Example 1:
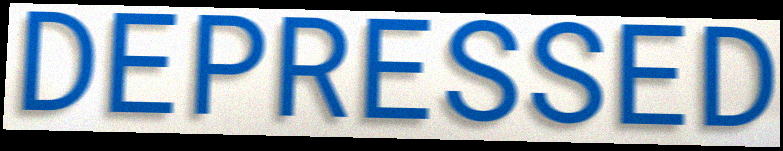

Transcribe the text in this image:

DEPRESSED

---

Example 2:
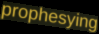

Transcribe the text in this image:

prophesying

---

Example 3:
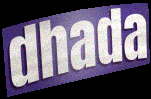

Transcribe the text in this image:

dhada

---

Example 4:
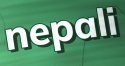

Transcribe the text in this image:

nepali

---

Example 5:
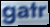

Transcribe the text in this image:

gatr